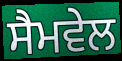
ਸੈਮਵੇਲ